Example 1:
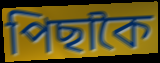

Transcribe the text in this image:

পিছাকৈ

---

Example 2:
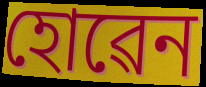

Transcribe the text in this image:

হোৱেন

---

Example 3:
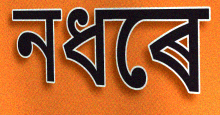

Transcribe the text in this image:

নধৰে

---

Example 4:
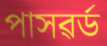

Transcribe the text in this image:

পাসৱৰ্ড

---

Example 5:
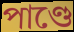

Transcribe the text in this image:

পাণ্ডে